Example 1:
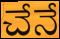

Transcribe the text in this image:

చేనే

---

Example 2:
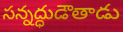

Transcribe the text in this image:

సన్నద్ధుడౌతాడు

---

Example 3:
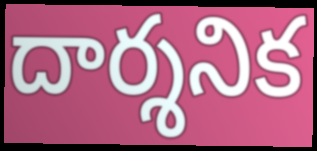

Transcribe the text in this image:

దార్శనిక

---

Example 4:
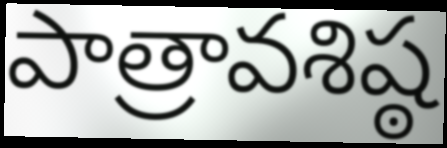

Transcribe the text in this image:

పాత్రావశిష్ఠ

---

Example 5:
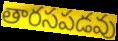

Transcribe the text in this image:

తారసపడవు